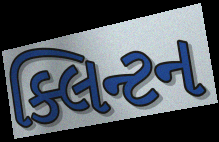
ક્લિન્ટન